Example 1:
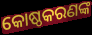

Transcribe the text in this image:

କୋଷ୍ଠକରଣଙ୍କ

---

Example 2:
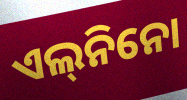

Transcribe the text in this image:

ଏଲ୍‌ନିନୋ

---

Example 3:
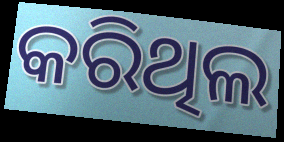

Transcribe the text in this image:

କରିଥିଲ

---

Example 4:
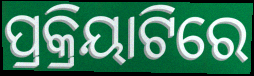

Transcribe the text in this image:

ପ୍ରକ୍ରିୟାଟିରେ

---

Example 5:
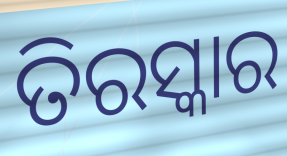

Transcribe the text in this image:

ତିରସ୍କାର